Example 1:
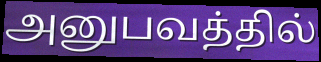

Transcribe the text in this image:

அனுபவத்தில்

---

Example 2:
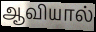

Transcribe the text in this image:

ஆவியால்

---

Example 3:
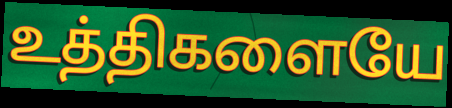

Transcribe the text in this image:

உத்திகளையே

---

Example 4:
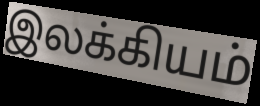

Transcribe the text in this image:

இலக்கியம்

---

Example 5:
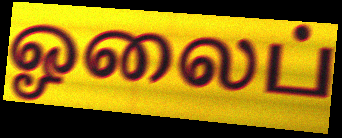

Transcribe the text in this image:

ஓலைப்